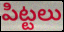
పిట్టలు